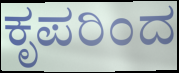
ಕೃಪರಿಂದ